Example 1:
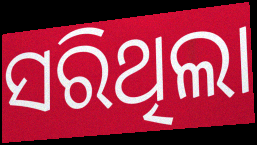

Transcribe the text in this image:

ସରିଥିଲା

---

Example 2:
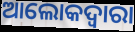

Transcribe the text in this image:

ଆଲୋକଦ୍ୱାରା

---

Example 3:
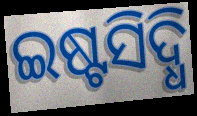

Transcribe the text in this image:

ଇଷ୍ଟସିଦ୍ଧି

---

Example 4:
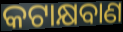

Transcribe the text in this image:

କଟାକ୍ଷବାଣ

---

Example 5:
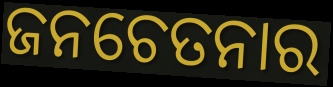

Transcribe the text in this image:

ଜନଚେତନାର